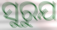
ସୁରୁଯ